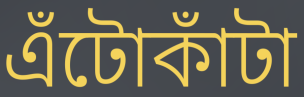
এঁটোকাঁটা